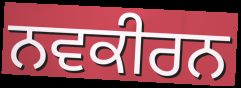
ਨਵਕੀਰਨ